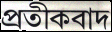
প্ৰতীকবাদ